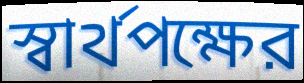
স্বার্থপক্ষের